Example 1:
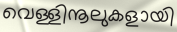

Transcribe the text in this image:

വെള്ളിനൂലുകളായി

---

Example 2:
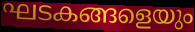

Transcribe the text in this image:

ഘടകങ്ങളെയും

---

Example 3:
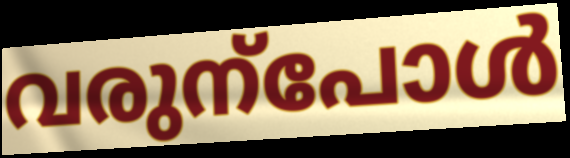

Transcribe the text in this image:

വരുന്പോൾ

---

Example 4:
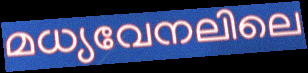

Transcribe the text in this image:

മധ്യവേനലിലെ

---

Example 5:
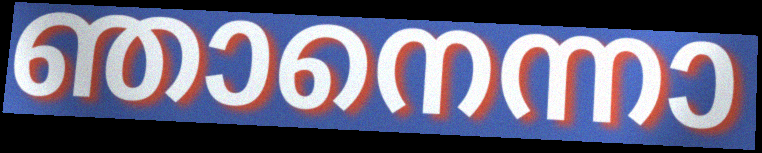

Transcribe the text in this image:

ഞാനെന്നാ